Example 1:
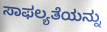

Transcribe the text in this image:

ಸಾಫಲ್ಯತೆಯನ್ನು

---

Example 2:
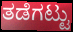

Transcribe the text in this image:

ತಡೆಗಟ್ಟು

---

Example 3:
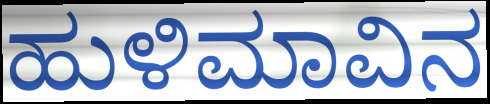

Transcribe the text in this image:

ಹುಳಿಮಾವಿನ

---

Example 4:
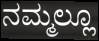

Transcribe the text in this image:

ನಮ್ಮಲ್ಲೂ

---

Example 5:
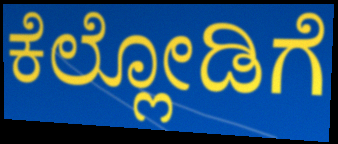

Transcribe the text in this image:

ಕೆಲ್ಲೋಡಿಗೆ